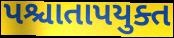
પશ્ચાતાપયુક્ત